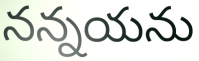
నన్నయను